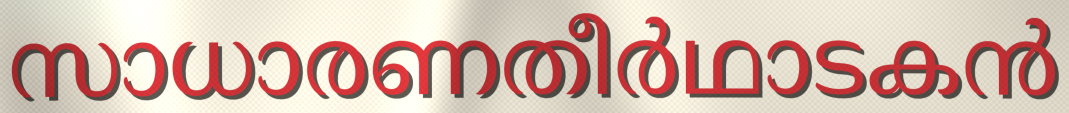
സാധാരണതീർഥാടകൻ